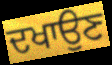
ਦਖਾਉਣ